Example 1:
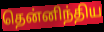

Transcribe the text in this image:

தென்னிந்திய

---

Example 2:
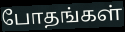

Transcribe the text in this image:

போதங்கள்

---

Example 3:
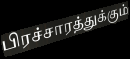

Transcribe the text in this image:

பிரச்சாரத்துக்கும்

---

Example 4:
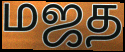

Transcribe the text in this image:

மஜத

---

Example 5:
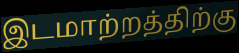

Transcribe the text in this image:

இடமாற்றத்திற்கு